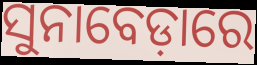
ସୁନାବେଡ଼ାରେ